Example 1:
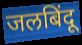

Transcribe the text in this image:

जलबिंदू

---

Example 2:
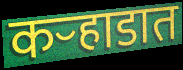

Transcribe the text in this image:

कऱ्हाडात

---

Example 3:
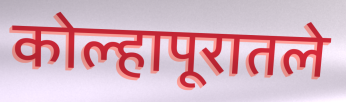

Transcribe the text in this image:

कोल्हापूरातले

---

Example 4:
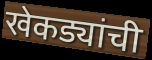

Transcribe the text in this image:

खेकड्यांची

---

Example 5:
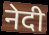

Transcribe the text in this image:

नेदी